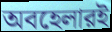
অবহেলারই